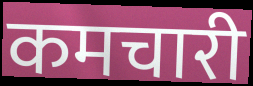
कमचारी